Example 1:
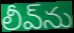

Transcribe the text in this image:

లీవ్‌ను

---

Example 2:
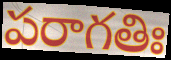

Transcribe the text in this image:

పరాగతిః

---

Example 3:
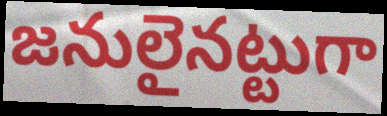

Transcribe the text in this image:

జనులైనట్టుగా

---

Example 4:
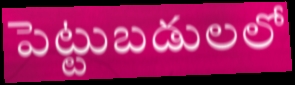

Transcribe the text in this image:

పెట్టుబడులలో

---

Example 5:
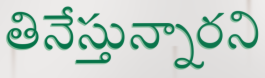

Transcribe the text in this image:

తినేస్తున్నారని